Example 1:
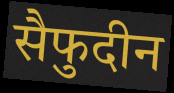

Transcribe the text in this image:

सैफुदीन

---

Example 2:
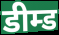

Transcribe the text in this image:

डीम्ड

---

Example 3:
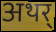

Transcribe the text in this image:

अथर्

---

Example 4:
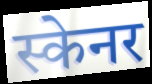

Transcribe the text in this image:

स्‍केनर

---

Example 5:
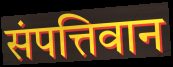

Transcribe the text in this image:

संपत्तिवान